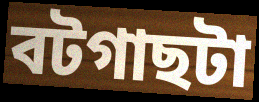
বটগাছটা